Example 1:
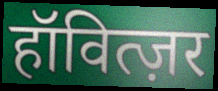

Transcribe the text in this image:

हॉवित्ज़र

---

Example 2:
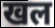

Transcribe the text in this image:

खल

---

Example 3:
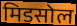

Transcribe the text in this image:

मिडसोल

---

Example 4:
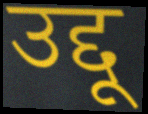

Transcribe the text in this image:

उद्दू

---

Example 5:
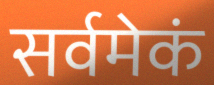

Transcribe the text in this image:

सर्वमेकं